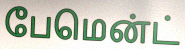
பேமென்ட்